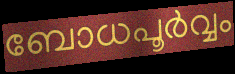
ബോധപൂർവ്വം